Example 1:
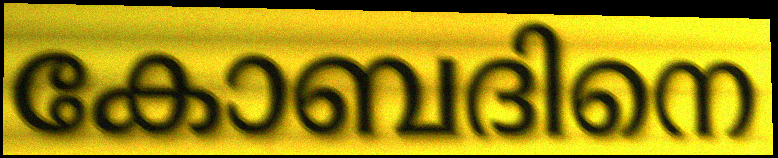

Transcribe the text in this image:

കോബദിനെ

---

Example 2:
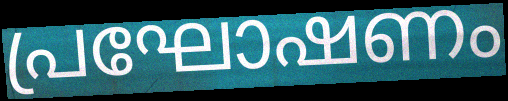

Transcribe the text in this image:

പ്രഘോഷണം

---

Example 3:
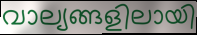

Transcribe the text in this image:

വാല്യങ്ങളിലായി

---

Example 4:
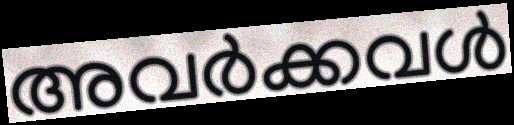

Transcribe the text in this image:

അവർക്കവൾ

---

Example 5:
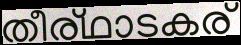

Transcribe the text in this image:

തീര്ഥാടകര്